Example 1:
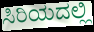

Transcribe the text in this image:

ಸಿರಿಯದಲ್ಲಿ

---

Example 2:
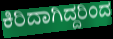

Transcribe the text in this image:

ಕಿರಿದಾಗಿದ್ದರಿಂದ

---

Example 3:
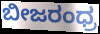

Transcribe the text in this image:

ಬೀಜರಂಧ್ರ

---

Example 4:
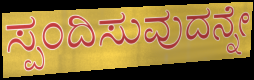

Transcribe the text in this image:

ಸ್ಪಂದಿಸುವುದನ್ನೇ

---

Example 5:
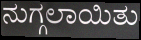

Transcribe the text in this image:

ನುಗ್ಗಲಾಯಿತು